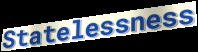
Statelessness